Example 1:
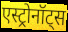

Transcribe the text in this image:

एस्ट्रोनॉट्स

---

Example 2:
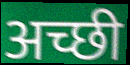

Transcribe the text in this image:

अच्छी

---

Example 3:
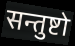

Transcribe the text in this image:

सन्तुष्टो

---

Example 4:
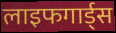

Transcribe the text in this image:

लाइफगार्ड्स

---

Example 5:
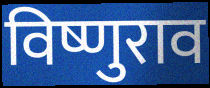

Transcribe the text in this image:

विष्णुराव